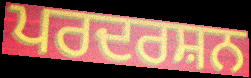
ਪਰਦਰਸ਼ਨ